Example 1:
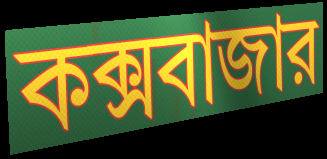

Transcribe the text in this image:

কক্সবাজার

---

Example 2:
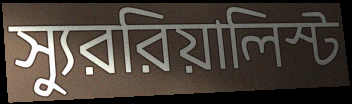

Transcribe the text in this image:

স্যুররিয়ালিস্ট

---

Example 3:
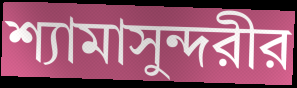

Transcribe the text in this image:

শ্যামাসুন্দরীর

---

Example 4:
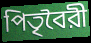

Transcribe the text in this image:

পিতৃবৈরী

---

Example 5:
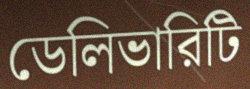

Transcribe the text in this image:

ডেলিভারিটি